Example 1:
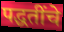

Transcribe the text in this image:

पद्धतींचे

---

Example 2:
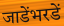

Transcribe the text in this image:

जाडेंभरडें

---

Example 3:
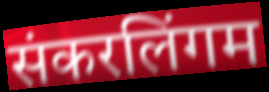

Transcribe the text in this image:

संकरलिंगम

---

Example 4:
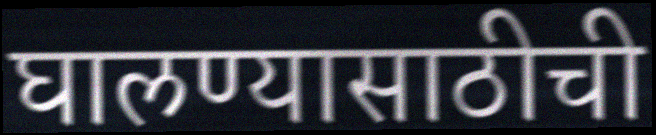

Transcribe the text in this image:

घालण्यासाठीची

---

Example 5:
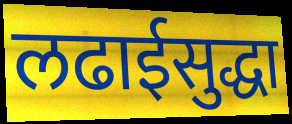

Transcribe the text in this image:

लढाईसुद्धा